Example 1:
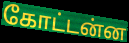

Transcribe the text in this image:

கோட்டன்ன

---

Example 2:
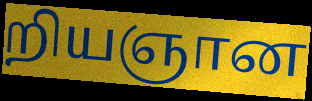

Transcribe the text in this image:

றியஞான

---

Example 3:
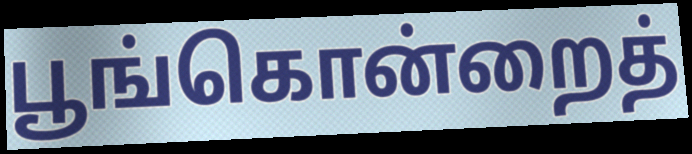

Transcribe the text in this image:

பூங்கொன்றைத்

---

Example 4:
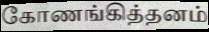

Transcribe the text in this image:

கோணங்கித்தனம்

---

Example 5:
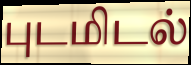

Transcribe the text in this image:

புடமிடல்